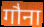
गौना